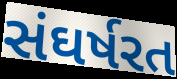
સંઘર્ષરત